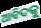
ଆବିଦକୁ